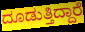
ದೂಡುತ್ತಿದ್ದಾರೆ